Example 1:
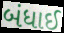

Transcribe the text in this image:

બંધાઈ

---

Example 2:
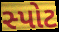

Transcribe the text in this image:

સ્પોટ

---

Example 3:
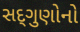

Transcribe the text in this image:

સદ્‌ગુણોનો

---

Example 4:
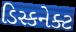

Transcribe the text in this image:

ડિસ્કનેક્ટ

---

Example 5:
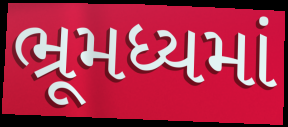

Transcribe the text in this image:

ભ્રૂમધ્યમાં